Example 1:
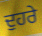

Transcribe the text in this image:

ਦੁਹਰੇ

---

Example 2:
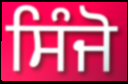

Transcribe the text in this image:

ਸਿੰਜੋ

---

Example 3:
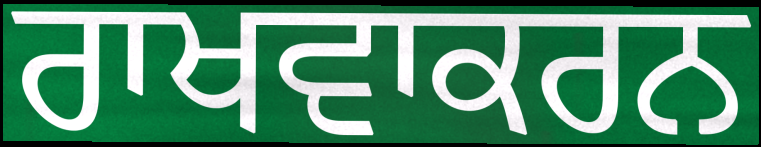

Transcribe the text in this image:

ਰਾਖਵਾਕਰਨ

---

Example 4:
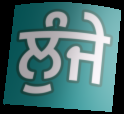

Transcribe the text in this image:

ਲੁੰਜੇ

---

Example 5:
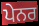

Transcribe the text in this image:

ਪੇਨਰ